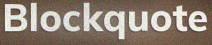
Blockquote